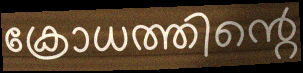
ക്രോധത്തിന്റെ